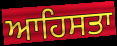
ਆਹਿਸਤਾ